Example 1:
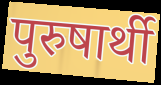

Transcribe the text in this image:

पुरुषार्थी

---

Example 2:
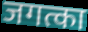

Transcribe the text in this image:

जगत्का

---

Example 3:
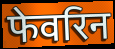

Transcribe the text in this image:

फेवरिन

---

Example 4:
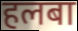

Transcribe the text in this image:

हलबा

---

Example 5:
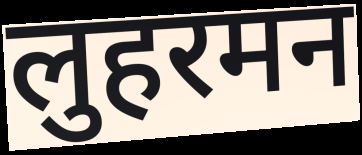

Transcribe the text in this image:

लुहरमन